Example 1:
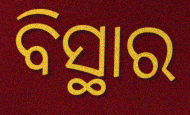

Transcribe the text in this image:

ବିସ୍ଥାର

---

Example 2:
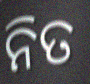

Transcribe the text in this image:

ନିତ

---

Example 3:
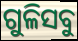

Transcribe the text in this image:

ଗୁଳିସବୁ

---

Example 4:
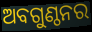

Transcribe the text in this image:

ଅବଗୁଣ୍ଠନର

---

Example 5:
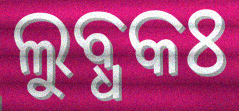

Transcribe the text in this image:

ଲୁବ୍ଧକଃ